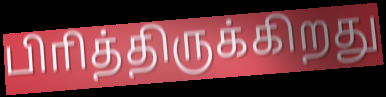
பிரித்திருக்கிறது